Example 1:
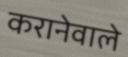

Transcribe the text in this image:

करानेवाले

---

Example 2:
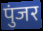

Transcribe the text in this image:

पुंजर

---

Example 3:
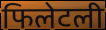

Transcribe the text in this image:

फिलेटली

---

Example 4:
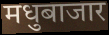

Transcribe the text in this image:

मधुबाजार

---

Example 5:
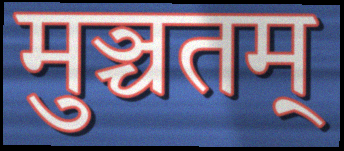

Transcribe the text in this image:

मुञ्चतम्